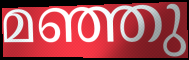
മഞ്ഞു